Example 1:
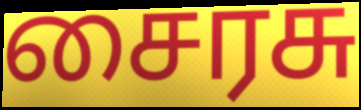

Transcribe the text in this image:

சைரசு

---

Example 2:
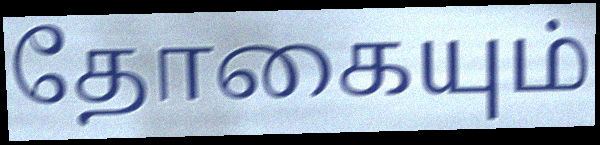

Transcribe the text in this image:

தோகையும்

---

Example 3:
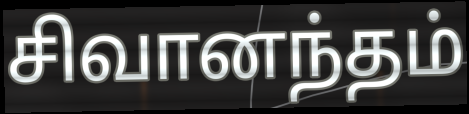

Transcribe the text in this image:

சிவானந்தம்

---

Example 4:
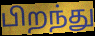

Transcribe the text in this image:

பிறந்து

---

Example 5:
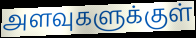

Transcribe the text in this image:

அளவுகளுக்குள்